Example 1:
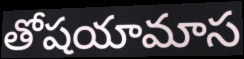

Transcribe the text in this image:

తోషయామాస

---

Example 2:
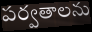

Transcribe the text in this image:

పర్వతాలను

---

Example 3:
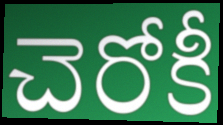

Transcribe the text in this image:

చెరోకీ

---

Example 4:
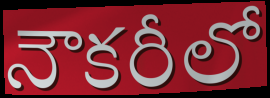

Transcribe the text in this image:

నౌకరీలో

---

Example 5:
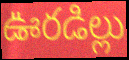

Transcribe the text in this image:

ఊరడిల్లు